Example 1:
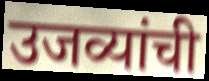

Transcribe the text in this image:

उजव्यांची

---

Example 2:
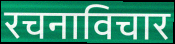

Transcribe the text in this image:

रचनाविचार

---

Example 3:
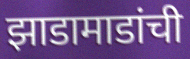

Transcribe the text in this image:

झाडामाडांची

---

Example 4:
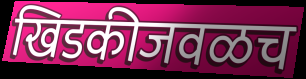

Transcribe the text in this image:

खिडकीजवळच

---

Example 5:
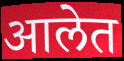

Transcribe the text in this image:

आलेत